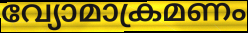
വ്യോമാക്രമണം